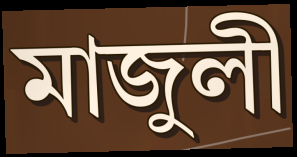
মাজুলী